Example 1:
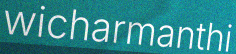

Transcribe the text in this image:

wicharmanthi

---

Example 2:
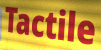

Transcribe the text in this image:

Tactile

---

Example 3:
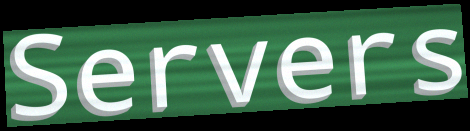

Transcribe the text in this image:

Servers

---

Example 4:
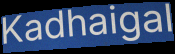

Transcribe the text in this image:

Kadhaigal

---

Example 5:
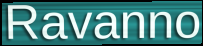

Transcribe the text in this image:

Ravanno